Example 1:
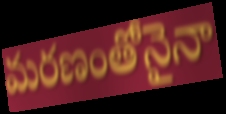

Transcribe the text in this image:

మరణంతోనైనా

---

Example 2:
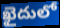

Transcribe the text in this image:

ఖైదులో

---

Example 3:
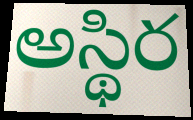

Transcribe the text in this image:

అస్థిర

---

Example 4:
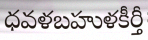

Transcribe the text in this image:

ధవళబహుళకీర్తీ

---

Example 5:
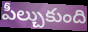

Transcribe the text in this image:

పీల్చుకుంది